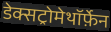
डेक्सट्रोमेथॉर्फ़ेन